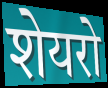
शेयरो